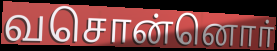
வசொன்னொர்